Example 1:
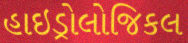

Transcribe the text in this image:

હાઇડ્રોલોજિકલ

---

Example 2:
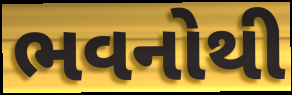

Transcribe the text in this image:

ભવનોથી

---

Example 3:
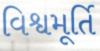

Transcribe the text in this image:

વિશ્વમૂર્તિ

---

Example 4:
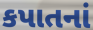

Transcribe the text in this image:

કપાતનાં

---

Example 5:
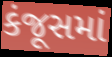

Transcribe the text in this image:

કંજૂસમાં